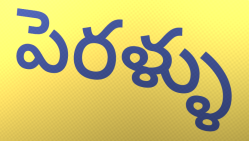
పెరళ్ళు